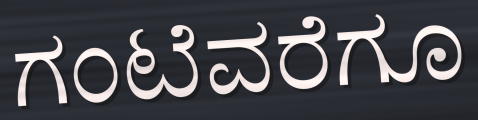
ಗಂಟೆವರೆಗೂ